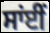
ਸਾਂਈਂ